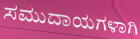
ಸಮುದಾಯಗಳಾಗಿ